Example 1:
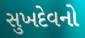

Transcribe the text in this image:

સુખદેવનો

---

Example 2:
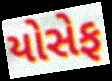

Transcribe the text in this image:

યોસેફ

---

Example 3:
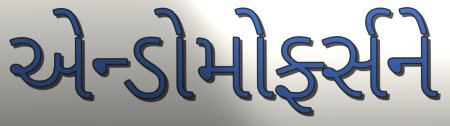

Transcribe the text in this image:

એન્ડોમોર્ફ્સને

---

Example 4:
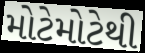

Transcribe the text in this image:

મોટેમોટેથી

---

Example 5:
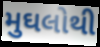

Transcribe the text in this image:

મુઘલોથી